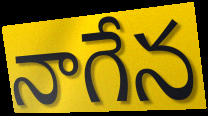
నాగేన